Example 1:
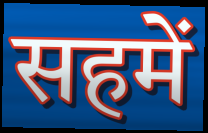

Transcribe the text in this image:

सहमें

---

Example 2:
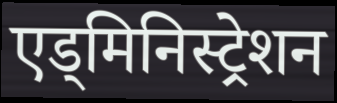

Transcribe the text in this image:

एड्मिनिस्ट्रेशन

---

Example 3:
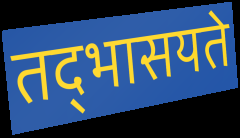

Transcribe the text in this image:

तद्भासयते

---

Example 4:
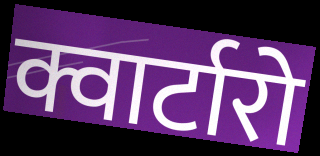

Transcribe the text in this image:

क्वार्टारो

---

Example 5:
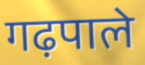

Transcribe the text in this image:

गढ़पाले